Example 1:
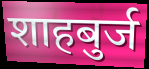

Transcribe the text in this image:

शाहबुर्ज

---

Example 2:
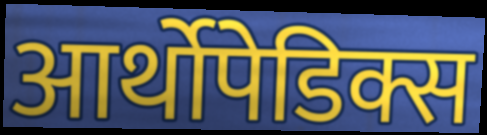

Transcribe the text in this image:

आर्थोपेडिक्स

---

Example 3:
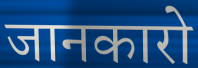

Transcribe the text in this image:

जानकारो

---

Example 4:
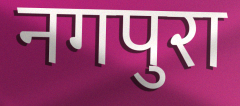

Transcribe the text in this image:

नगपुरा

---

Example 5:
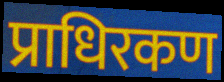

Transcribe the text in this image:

प्राधिरकण